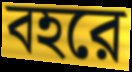
বহরে